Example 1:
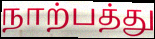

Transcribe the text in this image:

நாற்பத்து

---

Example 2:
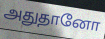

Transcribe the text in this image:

அதுதானோ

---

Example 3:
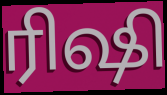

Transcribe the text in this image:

ரிஷி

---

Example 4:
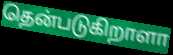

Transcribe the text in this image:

தென்படுகிறாளா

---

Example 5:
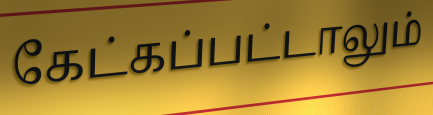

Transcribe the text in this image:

கேட்கப்பட்டாலும்